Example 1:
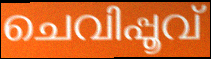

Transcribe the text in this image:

ചെവിപ്പൂവ്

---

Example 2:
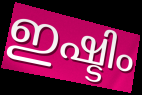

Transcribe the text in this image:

ഇഷ്ടിം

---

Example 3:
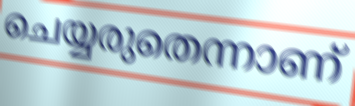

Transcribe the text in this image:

ചെയ്യരുതെന്നാണ്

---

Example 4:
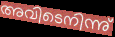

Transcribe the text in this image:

അവിടെനിന്നു്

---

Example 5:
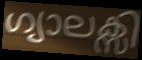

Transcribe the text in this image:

ഗ്യാലക്സി